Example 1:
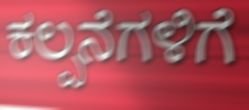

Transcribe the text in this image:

ಕಲ್ಪನೆಗಳಿಗೆ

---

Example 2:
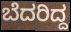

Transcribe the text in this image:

ಬೆದರಿದ್ದ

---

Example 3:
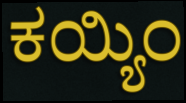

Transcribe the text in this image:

ಕಯ್ಯಿಂ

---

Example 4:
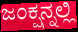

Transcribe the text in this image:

ಜಂಕ್ಷನ್ನಲ್ಲಿ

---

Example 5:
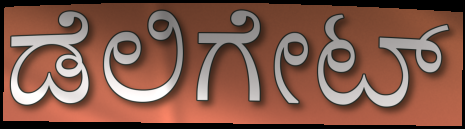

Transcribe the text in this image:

ಡೆಲಿಗೇಟ್